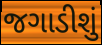
જગાડીશું